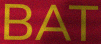
BAT